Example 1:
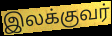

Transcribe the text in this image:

இலக்குவர்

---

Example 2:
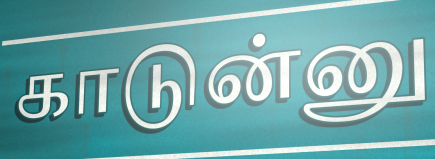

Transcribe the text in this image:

காடுன்னு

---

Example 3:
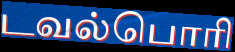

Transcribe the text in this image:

டவல்பொரி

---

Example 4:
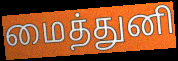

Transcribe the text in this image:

மைத்துனி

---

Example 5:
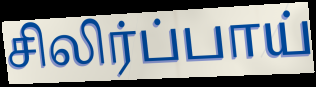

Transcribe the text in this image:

சிலிர்ப்பாய்